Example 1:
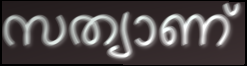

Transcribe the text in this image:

സത്യാണ്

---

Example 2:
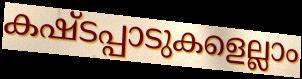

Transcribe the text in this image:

കഷ്ടപ്പാടുകളെല്ലാം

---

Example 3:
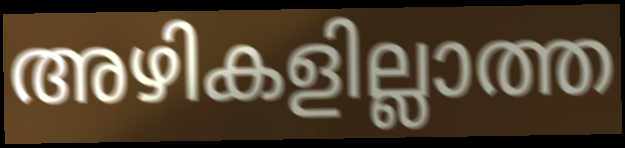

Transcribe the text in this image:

അഴികളില്ലാത്ത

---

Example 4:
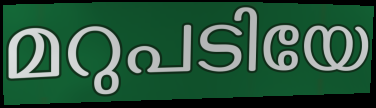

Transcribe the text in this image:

മറുപടിയേ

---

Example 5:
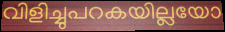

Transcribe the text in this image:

വിളിച്ചുപറകയില്ലയോ